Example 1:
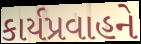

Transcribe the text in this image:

કાર્યપ્રવાહને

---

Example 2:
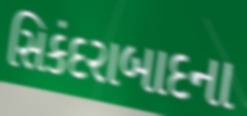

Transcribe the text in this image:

સિકંદરાબાદના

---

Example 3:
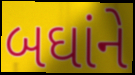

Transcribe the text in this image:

બઘાંને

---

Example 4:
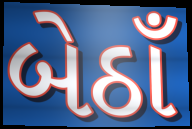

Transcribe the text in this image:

બેઠાઁ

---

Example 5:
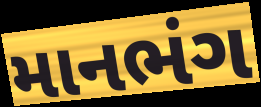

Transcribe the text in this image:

માનભંગ